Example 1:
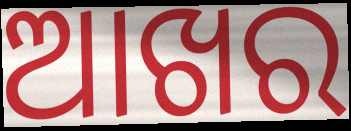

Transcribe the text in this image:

ଆଖର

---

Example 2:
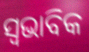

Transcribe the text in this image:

ସ୍ୱଭାବିକ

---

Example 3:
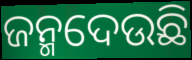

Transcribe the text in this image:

ଜନ୍ମଦେଉଛି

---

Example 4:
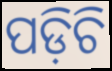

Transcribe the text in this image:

ପଡ଼ିଚି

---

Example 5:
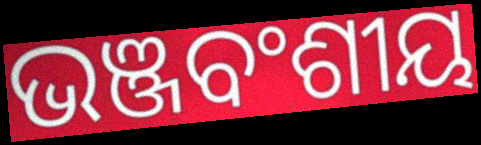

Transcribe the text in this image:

ଭଞ୍ଜବଂଶୀୟ